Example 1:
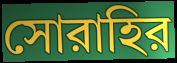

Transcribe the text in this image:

সোরাহির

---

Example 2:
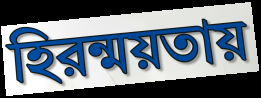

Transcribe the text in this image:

হিরন্ময়তায়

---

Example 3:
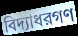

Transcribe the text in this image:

বিদ্যাধরগণ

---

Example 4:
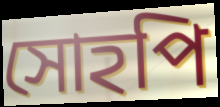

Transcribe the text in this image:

সোহপি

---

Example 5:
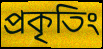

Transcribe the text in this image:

প্রকৃতিং